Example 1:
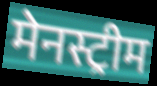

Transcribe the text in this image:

मेनस्ट्रीम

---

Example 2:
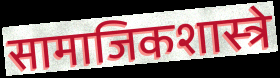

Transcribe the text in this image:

सामाजिकशास्त्रे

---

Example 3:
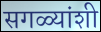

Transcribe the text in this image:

सगळ्यांशी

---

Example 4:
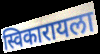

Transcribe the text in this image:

स्विकारायला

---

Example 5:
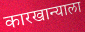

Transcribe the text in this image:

कारखान्याला